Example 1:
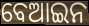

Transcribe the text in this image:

ବେଆଇନ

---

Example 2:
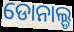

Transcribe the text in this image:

ଡୋନାଲ୍ଡ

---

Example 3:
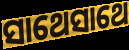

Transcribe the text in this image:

ସାଥେସାଥେ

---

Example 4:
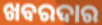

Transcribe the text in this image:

ଖବରଦାର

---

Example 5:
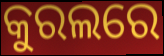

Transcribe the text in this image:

କୁରଲରେ